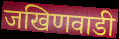
जखिणवाडी